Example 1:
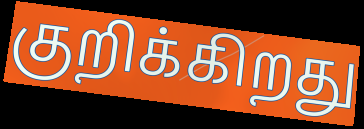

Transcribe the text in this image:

குறிக்கிறது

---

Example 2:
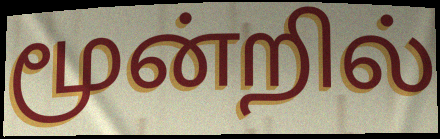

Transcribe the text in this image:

மூன்றில்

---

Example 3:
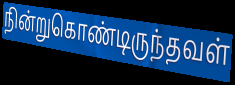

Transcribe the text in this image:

நின்றுகொண்டிருந்தவள்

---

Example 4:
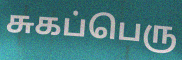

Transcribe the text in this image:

சுகப்பெரு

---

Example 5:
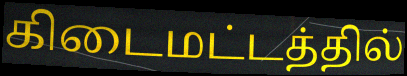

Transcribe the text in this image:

கிடைமட்டத்தில்